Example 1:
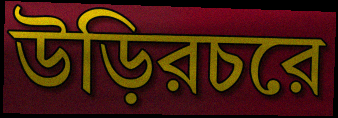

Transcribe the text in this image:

উড়িরচরে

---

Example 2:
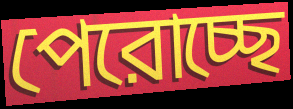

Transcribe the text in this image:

পেরোচ্ছে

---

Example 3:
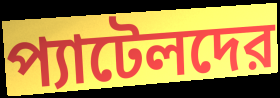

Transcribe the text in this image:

প্যাটেলদের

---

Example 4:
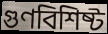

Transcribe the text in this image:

গুণবিশিষ্ট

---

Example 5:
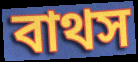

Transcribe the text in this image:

বাথস